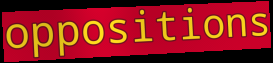
oppositions